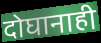
दोघानाही